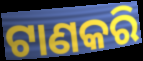
ଟାଣକରି